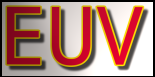
EUV